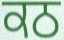
ਕਠ